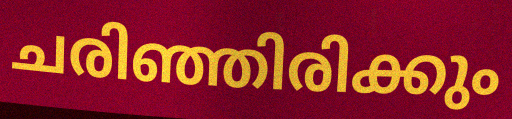
ചരിഞ്ഞിരിക്കും